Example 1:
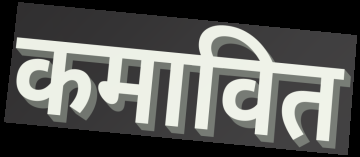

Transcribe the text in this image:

कमावित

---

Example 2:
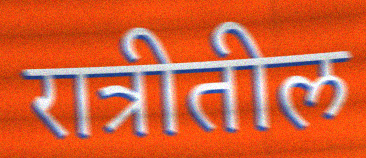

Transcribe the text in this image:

रात्रीतील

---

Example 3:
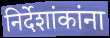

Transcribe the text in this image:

निर्देशांकांना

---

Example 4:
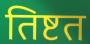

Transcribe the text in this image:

तिष्टत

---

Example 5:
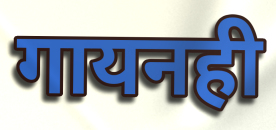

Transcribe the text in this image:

गायनही